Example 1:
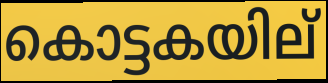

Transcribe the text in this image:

കൊട്ടകയില്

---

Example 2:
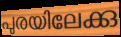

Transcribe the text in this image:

പുരയിലേക്കു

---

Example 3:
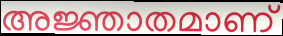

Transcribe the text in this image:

അജ്ഞാതമാണ്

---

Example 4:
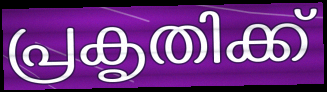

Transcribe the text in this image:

പ്രകൃതിക്ക്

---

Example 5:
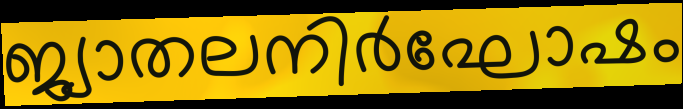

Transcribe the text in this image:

ജ്യാതലനിർഘോഷം